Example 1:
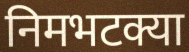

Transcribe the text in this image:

निमभटक्या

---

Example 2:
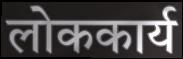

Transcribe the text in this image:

लोककार्य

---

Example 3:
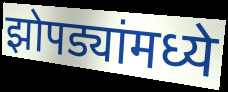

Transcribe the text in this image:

झोपड्यांमध्ये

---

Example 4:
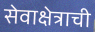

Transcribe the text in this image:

सेवाक्षेत्राची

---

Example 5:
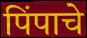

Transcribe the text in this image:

पिंपाचे